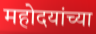
महोदयांच्या